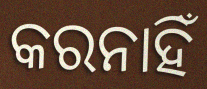
କରନାହିଁ